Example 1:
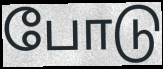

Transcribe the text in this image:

போடு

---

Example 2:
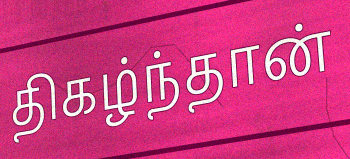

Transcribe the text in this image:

திகழ்ந்தான்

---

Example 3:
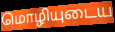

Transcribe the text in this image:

மொழியுடைய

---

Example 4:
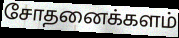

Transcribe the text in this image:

சோதனைக்களம்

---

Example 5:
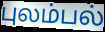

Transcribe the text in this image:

புலம்பல்